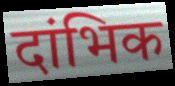
दांभिक